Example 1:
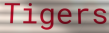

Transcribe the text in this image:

Tigers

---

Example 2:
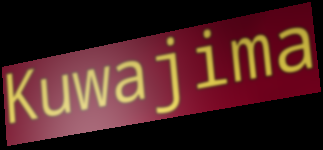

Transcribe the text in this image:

Kuwajima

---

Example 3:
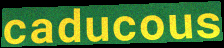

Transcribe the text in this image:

caducous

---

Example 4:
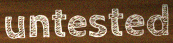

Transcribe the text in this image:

untested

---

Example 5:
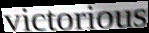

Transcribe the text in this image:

victorious